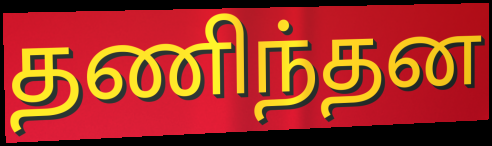
தணிந்தன